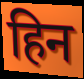
हिन